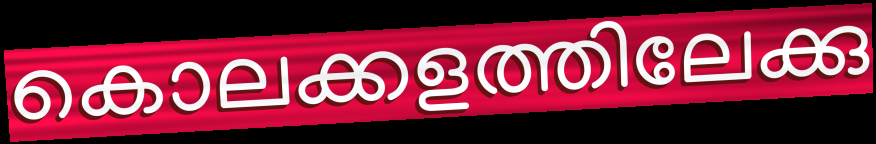
കൊലക്കളത്തിലേക്കു